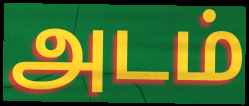
அடம்